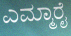
ಎಮ್ಮಾರೈ